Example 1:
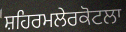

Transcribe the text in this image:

ਸ਼ਹਿਰਮਲੇਰਕੋਟਲਾ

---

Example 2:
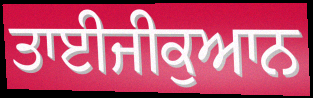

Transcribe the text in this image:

ਤਾਈਜੀਕੁਆਨ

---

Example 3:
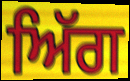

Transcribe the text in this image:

ਅਿੱਗ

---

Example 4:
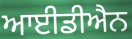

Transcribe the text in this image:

ਆਈਡੀਐਨ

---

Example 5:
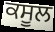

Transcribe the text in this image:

ਕਸੂਲ